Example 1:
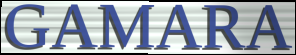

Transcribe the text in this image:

GAMARA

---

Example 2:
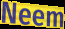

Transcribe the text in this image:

Neem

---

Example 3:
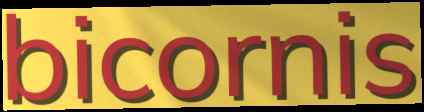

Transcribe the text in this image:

bicornis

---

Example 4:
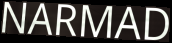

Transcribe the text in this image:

NARMAD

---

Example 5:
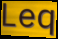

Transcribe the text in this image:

Leq